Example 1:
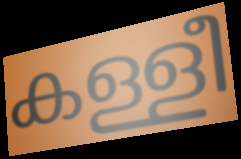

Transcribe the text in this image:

കള്ളീ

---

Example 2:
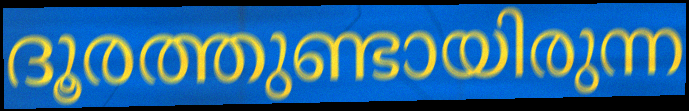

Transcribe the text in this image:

ദൂരത്തുണ്ടായിരുന്ന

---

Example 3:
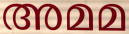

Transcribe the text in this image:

അമമ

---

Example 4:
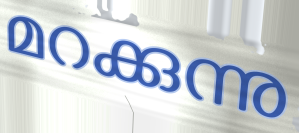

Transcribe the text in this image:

മറക്കുന്നു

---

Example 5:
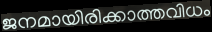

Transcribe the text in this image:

ജനമായിരിക്കാത്തവിധം